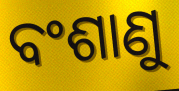
ବଂଶାଣୁ